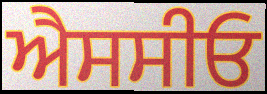
ਐਸਸੀਓ